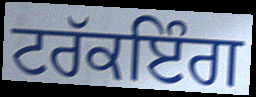
ਟਰੱਕਇੰਗ